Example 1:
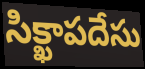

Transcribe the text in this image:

సిక్ఖాపదేసు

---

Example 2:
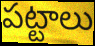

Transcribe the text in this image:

పట్టాలు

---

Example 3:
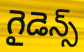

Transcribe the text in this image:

గైడెన్స్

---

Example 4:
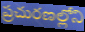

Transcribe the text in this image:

ప్రచురణల్లోని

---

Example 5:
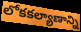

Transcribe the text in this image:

లోకకల్యాణాన్ని